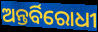
ଅନ୍ତର୍ବିରୋଧୀ